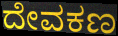
ದೇವಕಣ